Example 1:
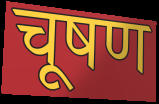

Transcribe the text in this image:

चूषण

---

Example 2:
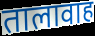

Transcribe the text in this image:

तालावाह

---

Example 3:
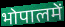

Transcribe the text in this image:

भोपालमें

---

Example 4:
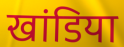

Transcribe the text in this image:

खांडिया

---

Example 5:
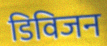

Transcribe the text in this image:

डिविजन